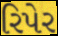
રિપેર